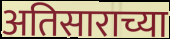
अतिसाराच्या